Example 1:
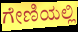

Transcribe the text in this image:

ಗೇಣಿಯಲ್ಲಿ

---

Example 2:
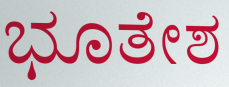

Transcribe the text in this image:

ಭೂತೇಶ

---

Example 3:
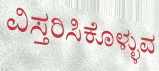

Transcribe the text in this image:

ವಿಸ್ತರಿಸಿಕೊಳ್ಳುವ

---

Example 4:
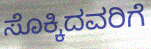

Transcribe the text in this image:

ಸೊಕ್ಕಿದವರಿಗೆ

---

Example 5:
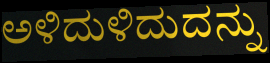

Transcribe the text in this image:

ಅಳಿದುಳಿದುದನ್ನು